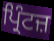
ਪ੍ਰਿੰਟਜ਼